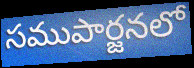
సముపార్జనలో